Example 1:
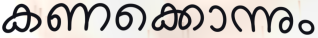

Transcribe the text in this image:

കണക്കൊന്നും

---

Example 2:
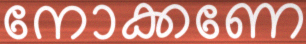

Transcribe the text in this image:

നോക്കണേ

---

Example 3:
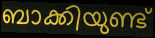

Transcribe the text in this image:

ബാക്കിയുണ്ട്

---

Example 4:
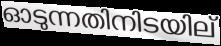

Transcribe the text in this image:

ഓടുന്നതിനിടയില്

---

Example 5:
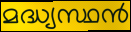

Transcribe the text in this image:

മദ്ധ്യസ്ഥൻ